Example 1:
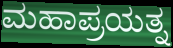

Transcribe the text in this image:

ಮಹಾಪ್ರಯತ್ನ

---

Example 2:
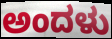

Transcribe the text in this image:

ಅಂದಳು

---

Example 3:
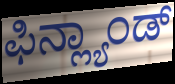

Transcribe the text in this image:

ಫಿನ್ಲ್ಯಾಂಡ್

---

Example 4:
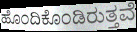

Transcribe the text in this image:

ಹೊಂದಿಕೊಂಡಿರುತ್ತವೆ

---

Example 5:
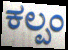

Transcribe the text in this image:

ಕಲ್ಪಂ